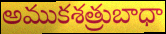
అముకశత్రుబాధా